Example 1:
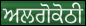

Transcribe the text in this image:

ਅਲਗੋਕੋਠੀ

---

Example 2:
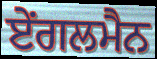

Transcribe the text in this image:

ਏਂਗਲਮੈਨ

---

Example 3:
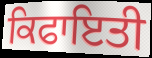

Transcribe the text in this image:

ਕਿਫਾਇਤੀ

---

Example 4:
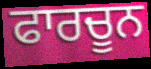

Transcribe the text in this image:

ਫਾਰਚੂਨ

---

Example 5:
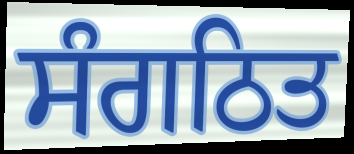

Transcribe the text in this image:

ਸੰਗਠਿਤ